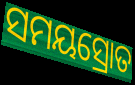
ସମୟସ୍ରୋତ